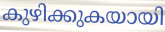
കുഴിക്കുകയായി